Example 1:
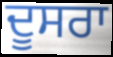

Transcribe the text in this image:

ਦੂਸਰਾ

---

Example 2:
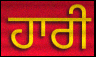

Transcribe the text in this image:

ਹਾਰੀ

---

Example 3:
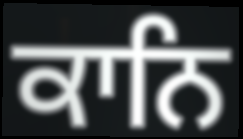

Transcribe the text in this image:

ਕਾਨਿ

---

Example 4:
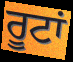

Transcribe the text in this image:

ਰੂਟਾਂ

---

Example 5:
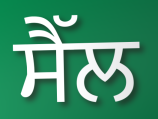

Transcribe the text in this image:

ਸੈੱਲ